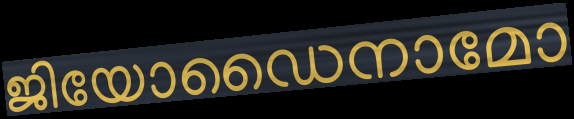
ജിയോഡൈനാമോ